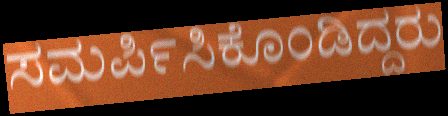
ಸಮರ್ಪಿಸಿಕೊಂಡಿದ್ದರು